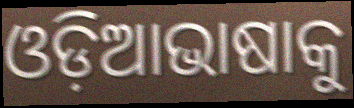
ଓଡ଼ିଆଭାଷାକୁ